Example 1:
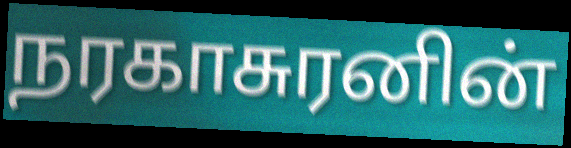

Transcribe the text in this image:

நரகாசுரனின்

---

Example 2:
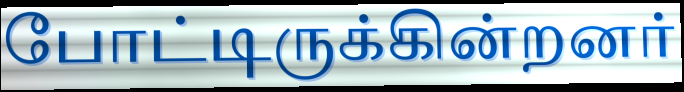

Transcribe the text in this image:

போட்டிருக்கின்றனர்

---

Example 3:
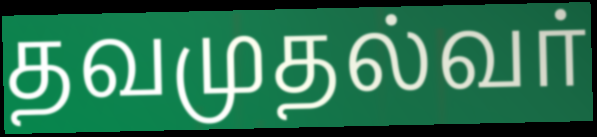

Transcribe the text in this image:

தவமுதல்வர்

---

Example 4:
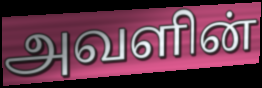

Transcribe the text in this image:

அவளின்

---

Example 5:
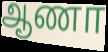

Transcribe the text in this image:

ஆணா